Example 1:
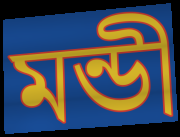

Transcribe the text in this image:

মন্ডী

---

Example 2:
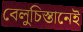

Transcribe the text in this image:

বেলুচিস্তানেই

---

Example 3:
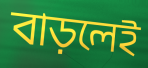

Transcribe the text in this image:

বাড়লেই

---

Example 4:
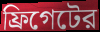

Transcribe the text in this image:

ফ্রিগেটের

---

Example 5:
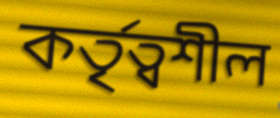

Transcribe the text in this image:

কর্তৃত্বশীল